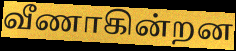
வீணாகின்றன